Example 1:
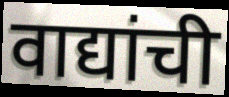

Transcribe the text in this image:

वाद्यांची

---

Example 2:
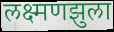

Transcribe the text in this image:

लक्ष्मणझुला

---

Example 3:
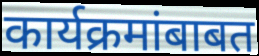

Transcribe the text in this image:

कार्यक्रमांबाबत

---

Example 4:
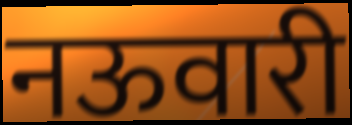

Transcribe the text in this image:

नऊवारी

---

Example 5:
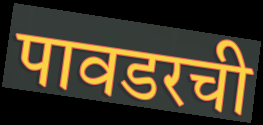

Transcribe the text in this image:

पावडरची